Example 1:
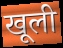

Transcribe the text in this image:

खूली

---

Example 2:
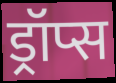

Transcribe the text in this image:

ड्रॉप्‍स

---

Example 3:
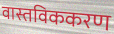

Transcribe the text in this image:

वास्तविककरण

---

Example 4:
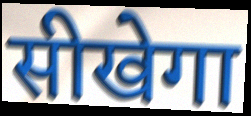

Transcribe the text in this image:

सीखेगा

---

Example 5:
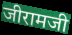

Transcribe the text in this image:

जीरामजी